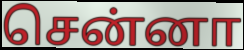
சென்னா